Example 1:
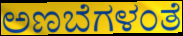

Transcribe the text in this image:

ಅಣಬೆಗಳಂತೆ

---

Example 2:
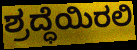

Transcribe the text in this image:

ಶ್ರದ್ಧೆಯಿರಲಿ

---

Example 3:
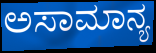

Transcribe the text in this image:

ಅಸಾಮಾನ್ಯ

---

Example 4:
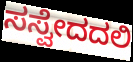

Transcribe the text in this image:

ಸಸ್ವೇದದಲಿ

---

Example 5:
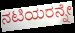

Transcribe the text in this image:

ನಟಿಯರನ್ನೇ